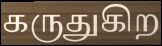
கருதுகிற